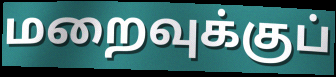
மறைவுக்குப்